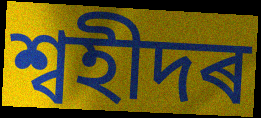
শ্বহীদৰ